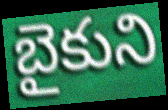
బైకుని